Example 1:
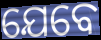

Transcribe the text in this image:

ଯେବେ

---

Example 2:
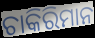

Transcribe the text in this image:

ଚାକିରିମାନ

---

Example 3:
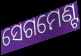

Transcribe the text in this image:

ସେଗମେଣ୍ଟ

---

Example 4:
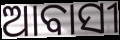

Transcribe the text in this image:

ଆବାସୀ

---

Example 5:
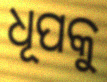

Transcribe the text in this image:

ଧୂପକୁ